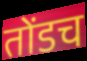
तोंडच